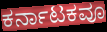
ಕರ್ನಾಟಕವೂ